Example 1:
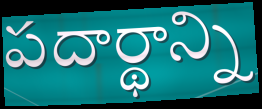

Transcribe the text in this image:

పదార్థాన్ని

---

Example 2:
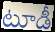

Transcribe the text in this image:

టూడీ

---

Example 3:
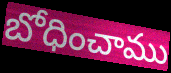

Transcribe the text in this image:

బోధించాము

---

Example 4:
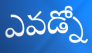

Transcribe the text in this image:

ఎవడ్నో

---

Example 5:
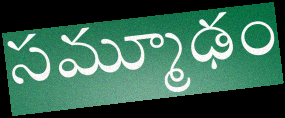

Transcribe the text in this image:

సమ్మూఢం